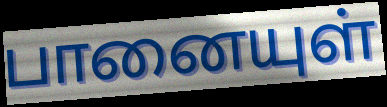
பானையுள்